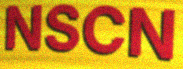
NSCN